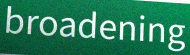
broadening